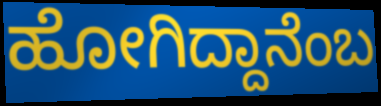
ಹೋಗಿದ್ದಾನೆಂಬ